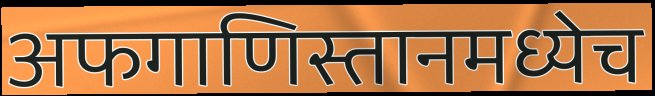
अफगाणिस्तानमध्येच